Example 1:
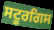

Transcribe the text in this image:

ਸਟੂਰਗਿਸ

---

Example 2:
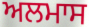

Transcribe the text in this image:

ਅਲਮਾਸ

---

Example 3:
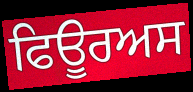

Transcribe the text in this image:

ਫਿਊਰਅਸ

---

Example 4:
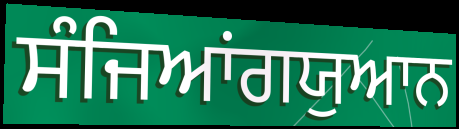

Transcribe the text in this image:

ਸੰਜਿਆਂਗਯੁਆਨ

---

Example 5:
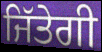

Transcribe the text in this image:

ਜਿੱਤੇਗੀ